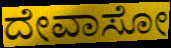
ದೇವಾಸೋ